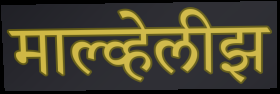
माल्व्हेलीझ